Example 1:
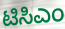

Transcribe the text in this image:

ಟಿಸಿಎಂ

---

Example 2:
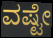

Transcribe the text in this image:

ವಷ್ಟೇ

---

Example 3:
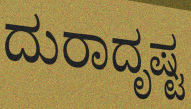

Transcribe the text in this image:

ದುರಾದೃಷ್ಟ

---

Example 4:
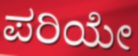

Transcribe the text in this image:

ಪರಿಯೇ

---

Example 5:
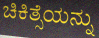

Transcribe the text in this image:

ಚಿಕಿತ್ಸೆಯನ್ನು